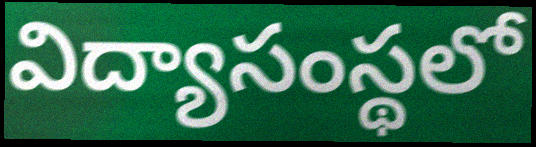
విద్యాసంస్థలో